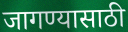
जागण्यासाठी